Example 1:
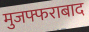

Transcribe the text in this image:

मुजफ्फराबाद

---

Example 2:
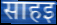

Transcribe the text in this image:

साहइ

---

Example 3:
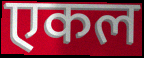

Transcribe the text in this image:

एकल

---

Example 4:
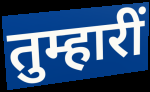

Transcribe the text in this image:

तुम्हारीं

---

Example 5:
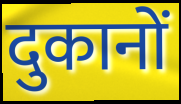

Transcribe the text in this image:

दुकानों